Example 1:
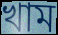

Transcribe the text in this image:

খাম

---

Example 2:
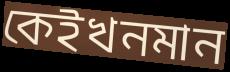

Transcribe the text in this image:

কেইখনমান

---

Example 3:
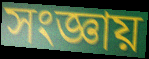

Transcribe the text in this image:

সংজ্ঞায়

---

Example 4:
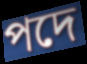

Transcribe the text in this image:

পদে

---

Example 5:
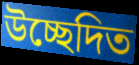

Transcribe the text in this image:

উচ্ছেদিত